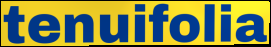
tenuifolia